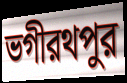
ভগীরথপুর